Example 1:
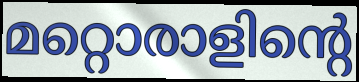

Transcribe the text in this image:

മറ്റൊരാളിന്റെ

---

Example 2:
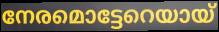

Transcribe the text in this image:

നേരമൊട്ടേറെയായ്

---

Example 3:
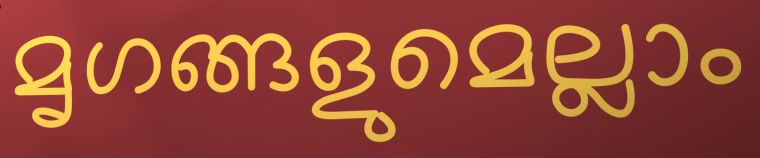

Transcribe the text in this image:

മൃഗങ്ങളുമെല്ലാം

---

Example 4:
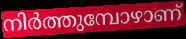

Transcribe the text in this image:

നിർത്തുമ്പോഴാണ്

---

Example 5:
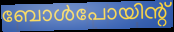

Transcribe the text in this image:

ബോൾപോയിന്റ്